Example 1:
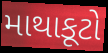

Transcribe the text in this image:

માથાકૂટો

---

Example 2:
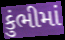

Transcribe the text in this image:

કુંભીમાં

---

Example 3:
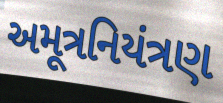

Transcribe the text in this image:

અમૂત્રનિયંત્રણ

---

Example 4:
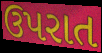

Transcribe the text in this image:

ઉપરાત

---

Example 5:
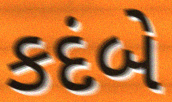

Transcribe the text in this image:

કદંબે